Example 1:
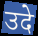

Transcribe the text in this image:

उदे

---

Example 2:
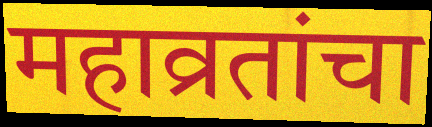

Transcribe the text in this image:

महाव्रतांचा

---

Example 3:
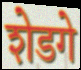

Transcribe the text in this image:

शेडगे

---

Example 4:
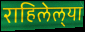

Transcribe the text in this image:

राहिलेल्या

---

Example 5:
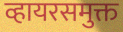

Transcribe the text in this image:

व्हायरसमुक्त